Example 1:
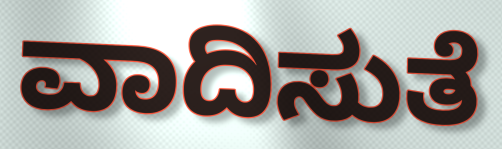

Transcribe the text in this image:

ವಾದಿಸುತೆ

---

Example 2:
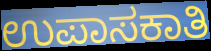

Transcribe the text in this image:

ಉಪಾಸಕಾತಿ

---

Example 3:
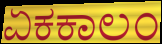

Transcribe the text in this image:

ಏಕಕಾಲಂ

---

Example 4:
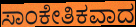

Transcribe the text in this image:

ಸಾಂಕೇತಿಕವಾದ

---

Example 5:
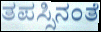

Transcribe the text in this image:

ತಪಸ್ಸಿನಂತೆ